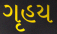
ગૃહય